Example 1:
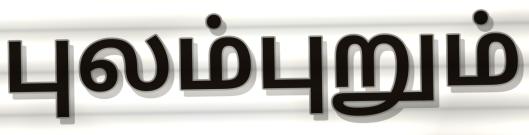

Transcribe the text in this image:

புலம்புறும்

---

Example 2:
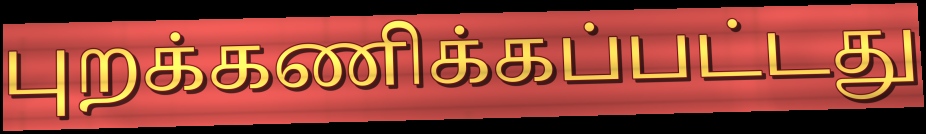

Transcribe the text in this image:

புறக்கணிக்கப்பட்டது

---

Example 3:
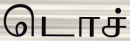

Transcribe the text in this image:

டொச்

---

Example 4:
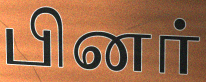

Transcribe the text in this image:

பினர்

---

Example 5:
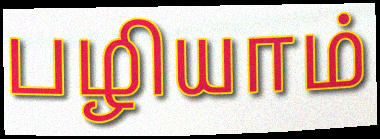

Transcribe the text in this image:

பழியாம்